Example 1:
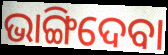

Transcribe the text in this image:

ଭାଙ୍ଗିଦେବା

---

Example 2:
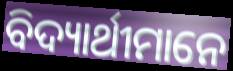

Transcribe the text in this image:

ବିଦ୍ୟାର୍ଥୀମାନେ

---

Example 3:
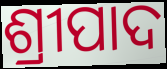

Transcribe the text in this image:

ଶ୍ରୀପାଦ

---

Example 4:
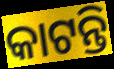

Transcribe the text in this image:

କାଟନ୍ତି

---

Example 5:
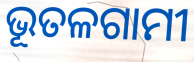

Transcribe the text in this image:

ଭୂତଳଗାମୀ